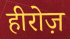
हीरोज़